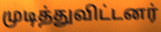
முடித்துவிட்டனர்